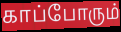
காப்போரும்